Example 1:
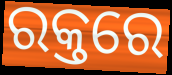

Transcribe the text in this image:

ରକ୍ତରେ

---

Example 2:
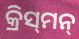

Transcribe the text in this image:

କ୍ରିସ୍‍ମନ୍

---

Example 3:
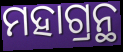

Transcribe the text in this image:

ମହାଗ୍ରନ୍ଥ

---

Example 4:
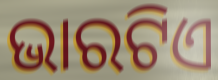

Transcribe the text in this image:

ଭାରଟିଏ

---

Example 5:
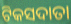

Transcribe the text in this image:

ଟିକସଦାତା